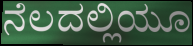
ನೆಲದಲ್ಲಿಯೂ